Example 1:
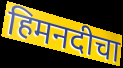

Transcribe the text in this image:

हिमनदीचा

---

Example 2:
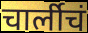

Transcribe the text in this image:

चार्लीचं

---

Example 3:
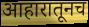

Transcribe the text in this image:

आहारातूनच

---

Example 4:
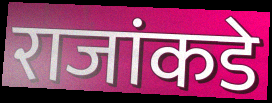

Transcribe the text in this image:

राजांकडे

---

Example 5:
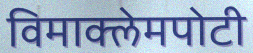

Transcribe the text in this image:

विमाक्लेमपोटी